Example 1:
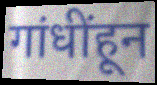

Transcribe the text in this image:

गांधींहून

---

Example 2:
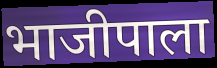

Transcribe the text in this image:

भाजीपाला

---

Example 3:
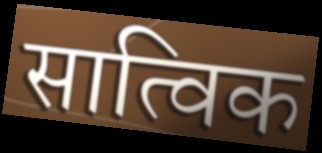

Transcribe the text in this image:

सात्विक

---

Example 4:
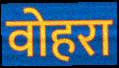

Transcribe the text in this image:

वोहरा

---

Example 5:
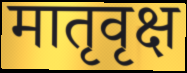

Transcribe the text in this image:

मातृवृक्ष